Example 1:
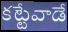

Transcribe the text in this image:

కట్టేవాడే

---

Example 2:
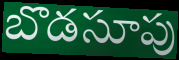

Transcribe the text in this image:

బొడసూపు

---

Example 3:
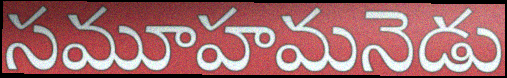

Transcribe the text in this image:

సమూహమనెడు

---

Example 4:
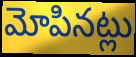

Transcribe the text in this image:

మోపినట్లు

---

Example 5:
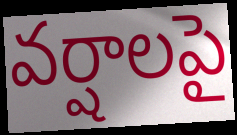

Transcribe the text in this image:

వర్షాలపై